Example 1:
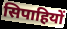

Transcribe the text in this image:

सिपाहियों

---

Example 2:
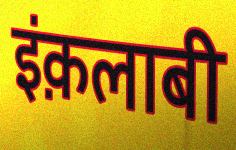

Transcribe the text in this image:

इंक़लाबी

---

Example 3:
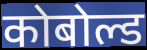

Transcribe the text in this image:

कोबोल्ड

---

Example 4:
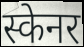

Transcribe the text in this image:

स्केनर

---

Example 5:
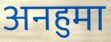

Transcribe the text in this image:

अनहुमा